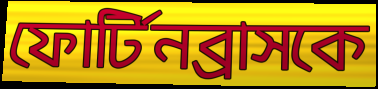
ফোর্টিনব্রাসকে